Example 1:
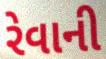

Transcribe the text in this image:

રેવાની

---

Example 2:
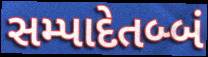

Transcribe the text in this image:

સમ્પાદેતબ્બં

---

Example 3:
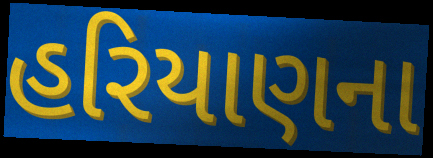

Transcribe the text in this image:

હરિયાણના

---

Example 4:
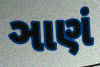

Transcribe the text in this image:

ઞાણં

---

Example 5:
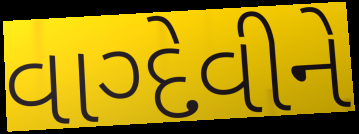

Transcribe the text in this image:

વાગ્દેવીને